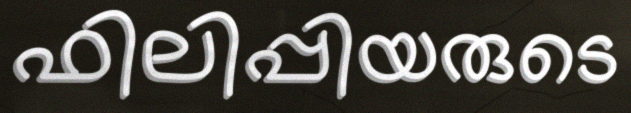
ഫിലിപ്പിയരുടെ